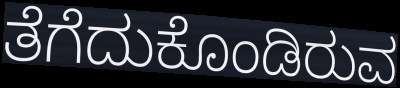
ತೆಗೆದುಕೊಂಡಿರುವ